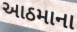
આઠમાના